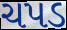
ચપડ